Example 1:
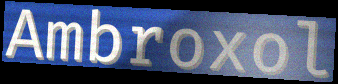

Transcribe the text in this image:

Ambroxol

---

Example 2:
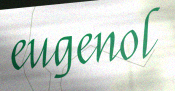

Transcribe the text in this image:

eugenol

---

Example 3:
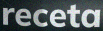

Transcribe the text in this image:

receta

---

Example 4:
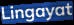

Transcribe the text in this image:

Lingayat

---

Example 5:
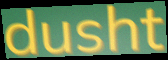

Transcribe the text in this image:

dusht